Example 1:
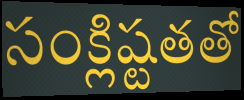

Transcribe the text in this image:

సంక్లిష్టతతో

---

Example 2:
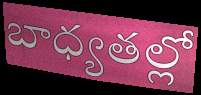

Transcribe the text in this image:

బాధ్యతల్లో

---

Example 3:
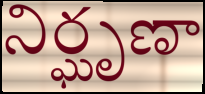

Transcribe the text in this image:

నిర్ఘృణా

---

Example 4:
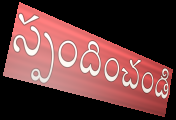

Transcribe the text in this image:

స్పందించండి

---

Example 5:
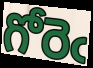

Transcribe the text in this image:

గోరెఁ